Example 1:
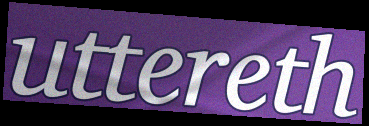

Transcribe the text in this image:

uttereth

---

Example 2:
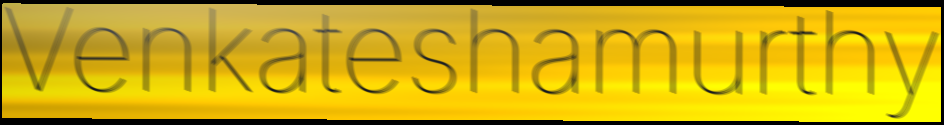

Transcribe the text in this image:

Venkateshamurthy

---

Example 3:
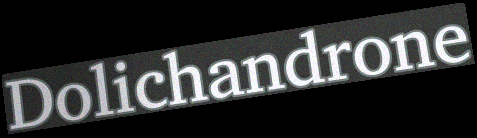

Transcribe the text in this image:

Dolichandrone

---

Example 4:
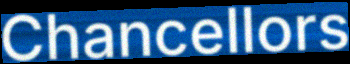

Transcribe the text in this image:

Chancellors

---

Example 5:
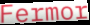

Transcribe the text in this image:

Fermor